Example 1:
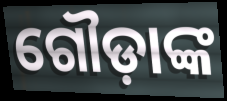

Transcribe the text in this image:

ଗୌଡ଼ାଙ୍କ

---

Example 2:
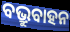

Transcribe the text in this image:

ବଭ୍ରୁବାହନ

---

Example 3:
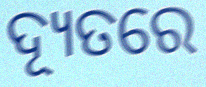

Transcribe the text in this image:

ଦ୍ୟୂତରେ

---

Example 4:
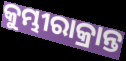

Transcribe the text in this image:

କୁମ୍ଭୀରାକ୍ରାନ୍ତ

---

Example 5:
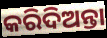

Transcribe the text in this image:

କରିଦିଅନ୍ତା